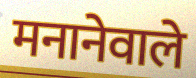
मनानेवाले